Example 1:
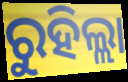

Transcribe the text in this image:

ରୁହିଲ୍ଲା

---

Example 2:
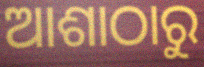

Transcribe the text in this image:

ଆଶାଠାରୁ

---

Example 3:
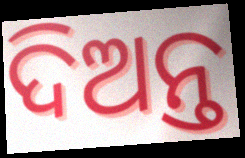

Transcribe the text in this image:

ଦିଅନ୍ତ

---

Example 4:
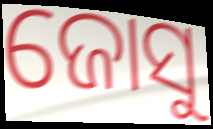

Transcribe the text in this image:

ଜୋସୁ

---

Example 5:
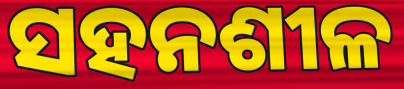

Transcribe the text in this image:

ସହନଶୀଳ